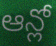
ఆన్లో